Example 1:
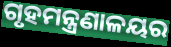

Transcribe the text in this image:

ଗୃହମନ୍ତ୍ରଣାଳୟର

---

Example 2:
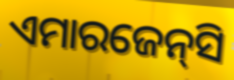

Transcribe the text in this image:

ଏମାରଜେନ୍‌ସି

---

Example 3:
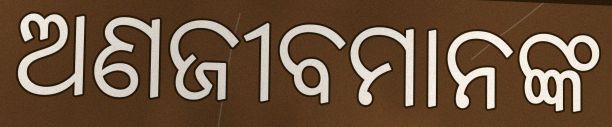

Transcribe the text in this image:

ଅଣଜୀବମାନଙ୍କ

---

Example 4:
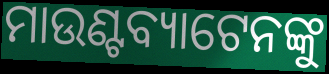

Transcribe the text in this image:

ମାଉଣ୍ଟବ୍ୟାଟେନଙ୍କୁ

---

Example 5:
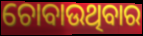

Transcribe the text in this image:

ଚୋବାଉଥିବାର